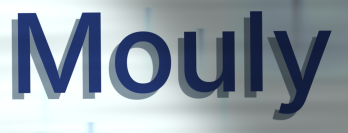
Mouly